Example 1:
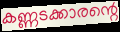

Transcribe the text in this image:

കണ്ണടക്കാരന്റെ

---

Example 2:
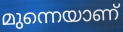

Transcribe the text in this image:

മുന്നെയാണ്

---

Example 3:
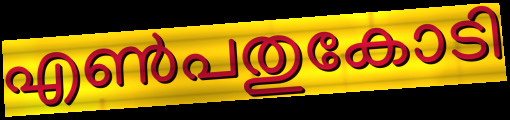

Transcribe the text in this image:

എൺപതുകോടി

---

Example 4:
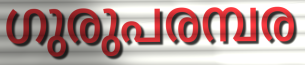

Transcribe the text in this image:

ഗുരുപരമ്പര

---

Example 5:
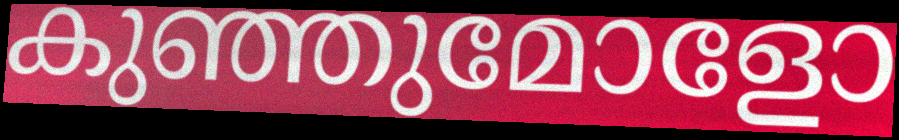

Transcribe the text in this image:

കുഞ്ഞുമോളോ